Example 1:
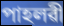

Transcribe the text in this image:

পাহলৱী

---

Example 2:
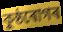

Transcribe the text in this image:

কুষ্ঠৰোগৰ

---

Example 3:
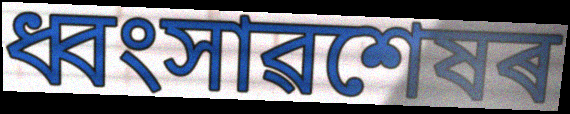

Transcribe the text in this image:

ধ্বংসাৱশেষৰ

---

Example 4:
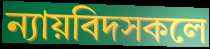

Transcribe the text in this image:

ন্যায়বিদসকলে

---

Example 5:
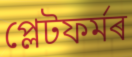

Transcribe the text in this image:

প্লেটফৰ্মৰ